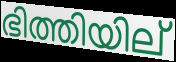
ഭിത്തിയില്